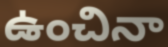
ఉంచినా